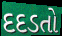
દદડતો